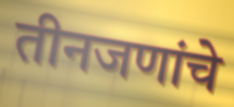
तीनजणांचे